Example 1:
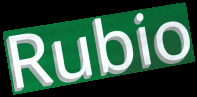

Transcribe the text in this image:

Rubio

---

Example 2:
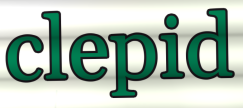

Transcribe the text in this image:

clepid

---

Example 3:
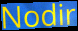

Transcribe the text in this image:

Nodir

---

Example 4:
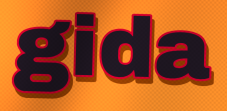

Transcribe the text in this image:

gida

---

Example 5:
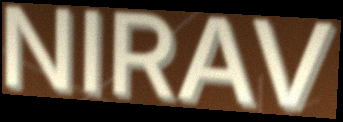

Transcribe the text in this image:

NIRAV